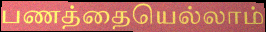
பணத்தையெல்லாம்